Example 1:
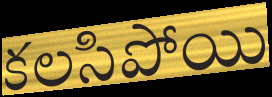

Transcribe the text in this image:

కలసిపోయి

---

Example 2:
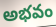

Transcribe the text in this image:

అభవం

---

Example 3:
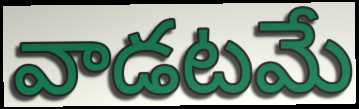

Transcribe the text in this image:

వాడటమే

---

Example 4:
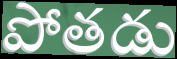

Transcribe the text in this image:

పోతడు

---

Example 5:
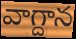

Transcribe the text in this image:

వాగ్దాన